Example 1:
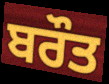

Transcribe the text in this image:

ਬਰੌਤ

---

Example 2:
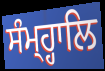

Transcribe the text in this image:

ਸੰਮ੍ਹ੍ਹਾਲਿ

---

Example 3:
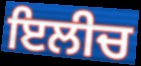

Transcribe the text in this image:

ਇਲੀਚ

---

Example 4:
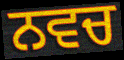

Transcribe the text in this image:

ਨਵਚ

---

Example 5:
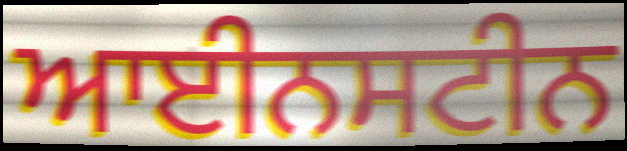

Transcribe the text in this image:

ਆਈਨਸਟੀਨ